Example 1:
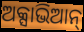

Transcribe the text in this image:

ଅକ୍ସାଭିଆନ୍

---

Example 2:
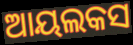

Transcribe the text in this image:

ଆୟଲକସ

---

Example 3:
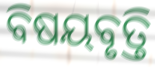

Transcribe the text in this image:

ବିଷୟବୃତ୍ତି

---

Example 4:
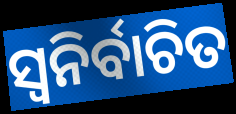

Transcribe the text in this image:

ସ୍ବନିର୍ବାଚିତ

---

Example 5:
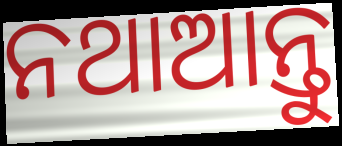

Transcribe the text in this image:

ନଥାଆନ୍ତୁ